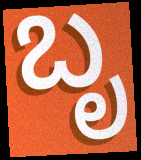
ಬೃ